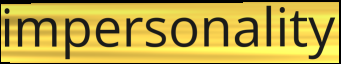
impersonality